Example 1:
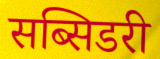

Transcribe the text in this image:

सब्सिडरी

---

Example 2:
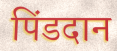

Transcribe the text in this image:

पिंडदान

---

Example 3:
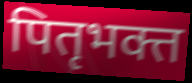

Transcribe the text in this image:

पितृभक्त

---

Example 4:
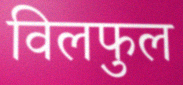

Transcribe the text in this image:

विलफुल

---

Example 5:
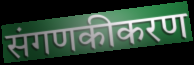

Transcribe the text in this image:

संगणकीकरण